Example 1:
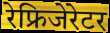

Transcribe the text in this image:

रेफ्रिजेरेटर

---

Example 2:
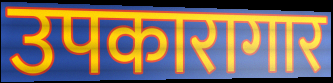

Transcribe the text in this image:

उपकारागार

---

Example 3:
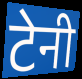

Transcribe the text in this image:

टेनी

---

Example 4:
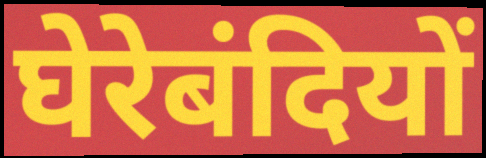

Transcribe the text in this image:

घेरेबंदियों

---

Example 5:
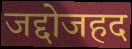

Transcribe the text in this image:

जद्दोजहद